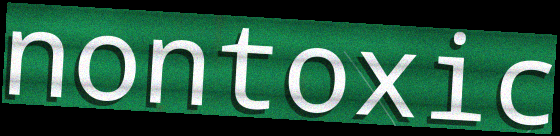
nontoxic